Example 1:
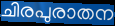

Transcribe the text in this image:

ചിരപുരാതന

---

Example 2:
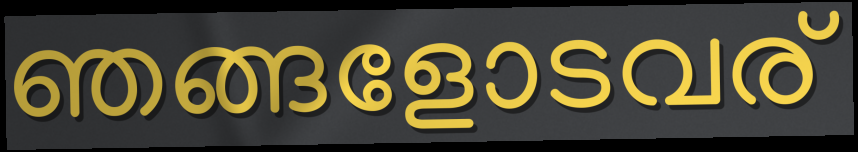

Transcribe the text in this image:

ഞങ്ങളോടവര്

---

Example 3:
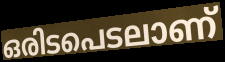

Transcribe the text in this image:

ഒരിടപെടലാണ്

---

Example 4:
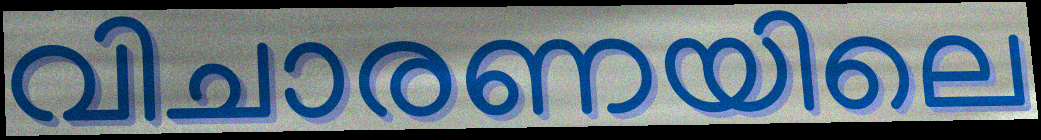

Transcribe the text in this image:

വിചാരണയിലെ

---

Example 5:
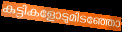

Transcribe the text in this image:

കുട്ടികളോടുമിടഞ്ഞോ